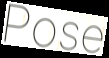
Pose